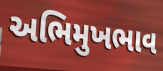
અભિમુખભાવ